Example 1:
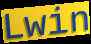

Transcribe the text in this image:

Lwin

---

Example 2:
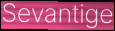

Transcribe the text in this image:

Sevantige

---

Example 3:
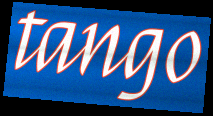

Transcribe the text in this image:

tango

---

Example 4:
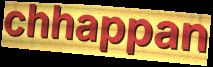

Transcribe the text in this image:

chhappan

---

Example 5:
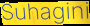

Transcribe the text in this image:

Suhagini